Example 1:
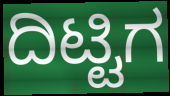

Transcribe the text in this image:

ದಿಟ್ಟಿಗ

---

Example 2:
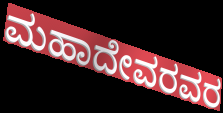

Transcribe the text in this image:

ಮಹಾದೇವರವರ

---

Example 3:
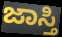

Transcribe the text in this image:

ಜಾಸ್ತಿ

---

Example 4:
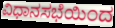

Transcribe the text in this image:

ವಿಧಾನಸಭೆಯಿಂದ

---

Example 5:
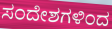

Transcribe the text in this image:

ಸಂದೇಶಗಳಿಂದ